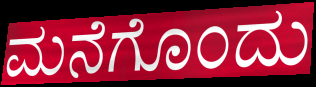
ಮನೆಗೊಂದು